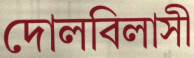
দোলবিলাসী